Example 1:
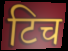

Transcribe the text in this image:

टिच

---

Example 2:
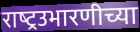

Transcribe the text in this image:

राष्ट्रउभारणीच्या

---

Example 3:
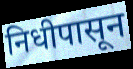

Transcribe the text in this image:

निधीपासून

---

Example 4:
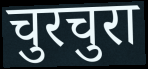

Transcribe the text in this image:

चुरचुरा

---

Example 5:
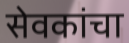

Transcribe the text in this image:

सेवकांचा